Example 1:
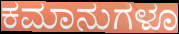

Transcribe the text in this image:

ಕಮಾನುಗಳೂ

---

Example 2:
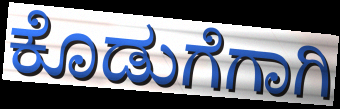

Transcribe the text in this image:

ಕೊಡುಗೆಗಾಗಿ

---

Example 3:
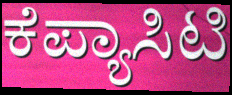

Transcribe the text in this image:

ಕೆಪ್ಯಾಸಿಟಿ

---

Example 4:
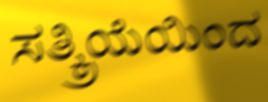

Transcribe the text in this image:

ಸತ್ಕ್ರಿಯೆಯಿಂದ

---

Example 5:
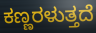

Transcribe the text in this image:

ಕಣ್ಣರಳುತ್ತದೆ